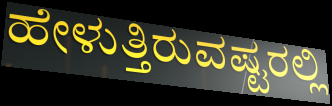
ಹೇಳುತ್ತಿರುವಷ್ಟರಲ್ಲಿ